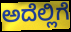
ಅದೆಲ್ಲಿಗೆ